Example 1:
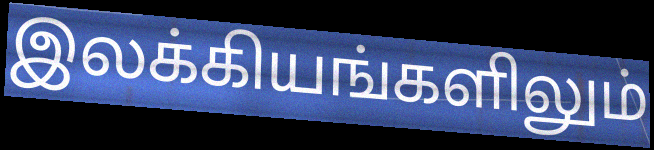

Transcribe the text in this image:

இலக்கியங்களிலும்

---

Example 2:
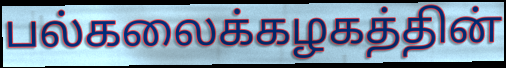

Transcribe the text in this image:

பல்கலைக்கழகத்தின்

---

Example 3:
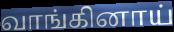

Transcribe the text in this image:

வாங்கினாய்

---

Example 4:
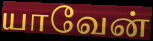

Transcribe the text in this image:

யாவேன்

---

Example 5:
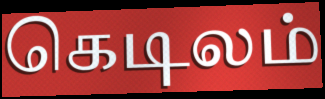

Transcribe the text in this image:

கெடிலம்